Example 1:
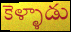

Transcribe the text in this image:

కెళ్ళాడు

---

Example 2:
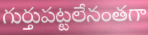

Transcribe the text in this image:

గుర్తుపట్టలేనంతగా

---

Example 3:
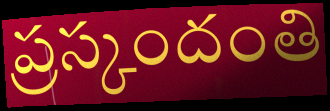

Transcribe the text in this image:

ప్రస్కందంతి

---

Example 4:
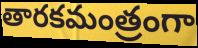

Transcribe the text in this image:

తారకమంత్రంగా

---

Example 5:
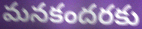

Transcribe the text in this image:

మనకందరకు